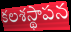
కలశస్థాపన